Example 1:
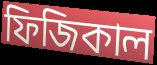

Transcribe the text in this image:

ফিজিকাল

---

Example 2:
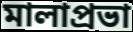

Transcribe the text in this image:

মালাপ্রভা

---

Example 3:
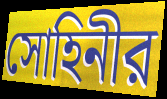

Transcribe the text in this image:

সোহিনীর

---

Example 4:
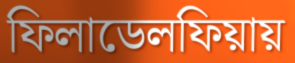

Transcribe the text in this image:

ফিলাডেলফিয়ায়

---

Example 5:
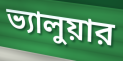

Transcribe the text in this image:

ভ্যালুয়ার